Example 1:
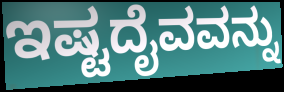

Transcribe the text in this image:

ಇಷ್ಟದೈವವನ್ನು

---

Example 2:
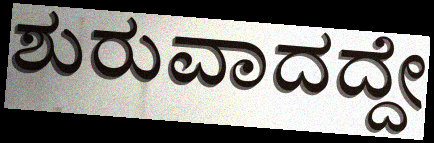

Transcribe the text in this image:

ಶುರುವಾದದ್ದೇ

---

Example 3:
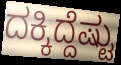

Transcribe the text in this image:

ದಕ್ಕಿದ್ದೆಷ್ಟು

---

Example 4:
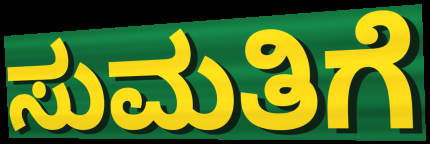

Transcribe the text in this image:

ಸುಮತಿಗೆ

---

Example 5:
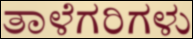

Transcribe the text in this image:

ತಾಳೆಗರಿಗಳು